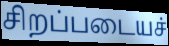
சிறப்படையச்